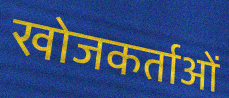
खोजकर्ताओं